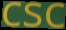
csc